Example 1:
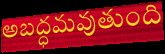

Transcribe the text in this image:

అబద్ధమవుతుంది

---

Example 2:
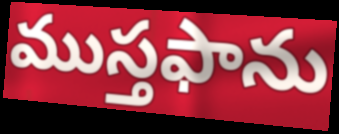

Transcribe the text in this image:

ముస్తఫాను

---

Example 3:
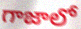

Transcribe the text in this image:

గాజాలో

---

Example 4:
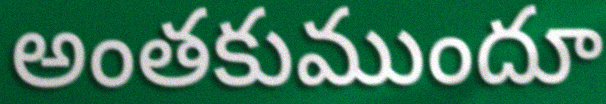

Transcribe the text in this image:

అంతకుముందూ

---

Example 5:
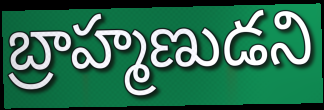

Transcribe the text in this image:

బ్రాహ్మణుడని